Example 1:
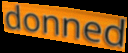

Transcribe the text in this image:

donned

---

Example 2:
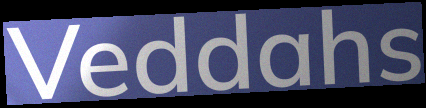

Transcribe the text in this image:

Veddahs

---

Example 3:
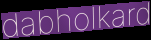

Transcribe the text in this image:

dabholkard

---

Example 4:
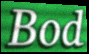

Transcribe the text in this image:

Bod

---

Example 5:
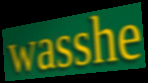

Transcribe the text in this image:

wasshe